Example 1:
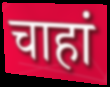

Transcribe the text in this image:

चाहां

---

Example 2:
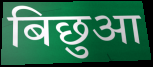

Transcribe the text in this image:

बिछुआ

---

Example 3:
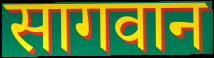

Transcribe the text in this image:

सागवान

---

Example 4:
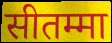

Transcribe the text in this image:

सीतम्मा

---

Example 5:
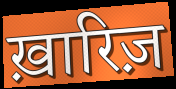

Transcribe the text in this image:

ख़ारिज़